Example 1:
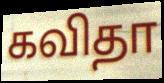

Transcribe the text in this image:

கவிதா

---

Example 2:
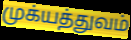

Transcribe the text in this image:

முக்யத்துவம்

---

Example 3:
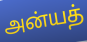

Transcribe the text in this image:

அன்யத்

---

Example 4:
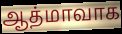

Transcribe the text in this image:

ஆத்மாவாக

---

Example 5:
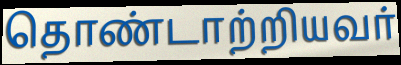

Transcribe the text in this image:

தொண்டாற்றியவர்